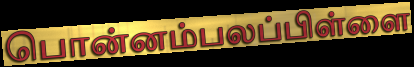
பொன்னம்பலப்பிள்ளை